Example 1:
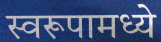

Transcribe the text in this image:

स्वरूपामध्ये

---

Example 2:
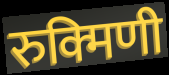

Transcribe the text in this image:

रुक्‍मिणी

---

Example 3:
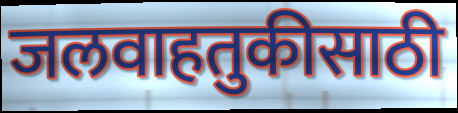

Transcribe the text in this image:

जलवाहतुकीसाठी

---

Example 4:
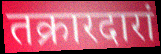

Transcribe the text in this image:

तक्रारदारां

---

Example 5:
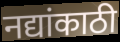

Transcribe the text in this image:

नद्यांकाठी